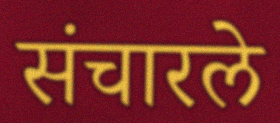
संचारले